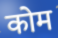
कोम